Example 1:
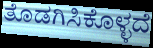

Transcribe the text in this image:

ತೊಡಗಿಸಿಕೊಳ್ಳದೆ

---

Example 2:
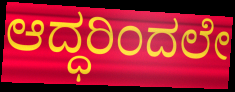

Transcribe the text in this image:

ಆದ್ಧರಿಂದಲೇ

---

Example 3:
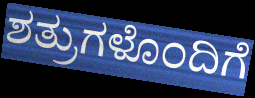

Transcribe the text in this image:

ಶತ್ರುಗಳೊಂದಿಗೆ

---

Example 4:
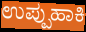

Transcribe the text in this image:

ಉಪ್ಪುಹಾಕಿ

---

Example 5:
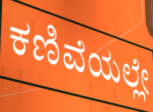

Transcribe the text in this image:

ಕಣಿವೆಯಲ್ಲೇ